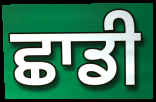
ਛਾਡੀ